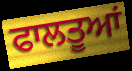
ਫਾਲਤੂਆਂ